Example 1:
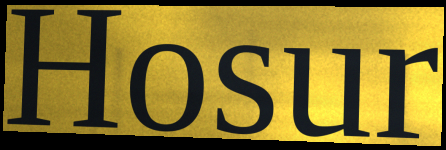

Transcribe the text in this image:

Hosur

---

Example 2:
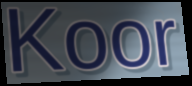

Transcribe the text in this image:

Koor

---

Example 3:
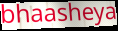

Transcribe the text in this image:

bhaasheya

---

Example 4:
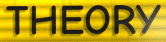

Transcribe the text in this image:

THEORY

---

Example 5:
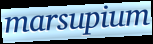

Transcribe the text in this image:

marsupium